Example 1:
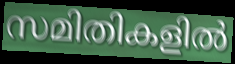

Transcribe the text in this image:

സമിതികളിൽ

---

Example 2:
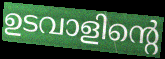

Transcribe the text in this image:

ഉടവാളിന്റെ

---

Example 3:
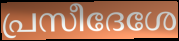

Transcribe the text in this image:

പ്രസീദേശേ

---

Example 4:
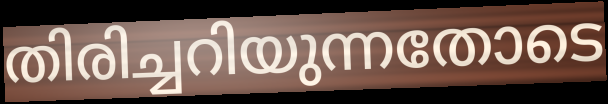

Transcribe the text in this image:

തിരിച്ചറിയുന്നതോടെ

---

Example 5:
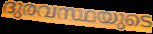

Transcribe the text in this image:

ദുരവസ്ഥയുടെ